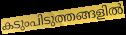
കടുംപിടുത്തങ്ങളിൽ